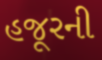
હજૂરની